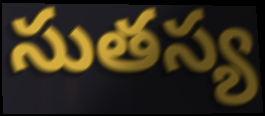
సుతస్య